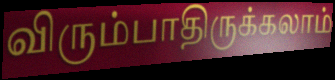
விரும்பாதிருக்கலாம்